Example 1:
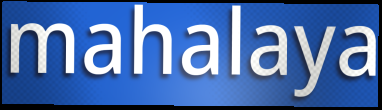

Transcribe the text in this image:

mahalaya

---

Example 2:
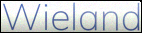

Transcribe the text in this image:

Wieland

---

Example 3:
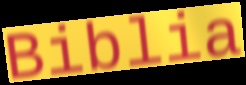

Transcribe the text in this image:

Biblia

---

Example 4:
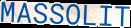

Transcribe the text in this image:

MASSOLIT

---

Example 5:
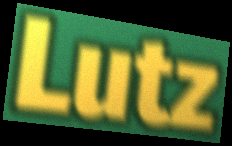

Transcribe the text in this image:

Lutz